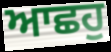
ਆਛਹੁ